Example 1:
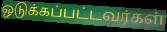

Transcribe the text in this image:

ஒடுக்கப்பட்டவர்கள்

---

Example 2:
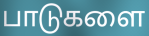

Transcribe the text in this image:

பாடுகளை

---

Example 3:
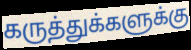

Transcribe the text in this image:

கருத்துக்களுக்கு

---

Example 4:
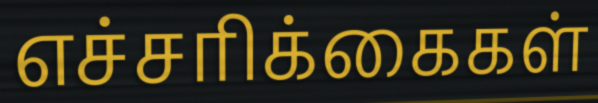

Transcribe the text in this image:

எச்சரிக்கைகள்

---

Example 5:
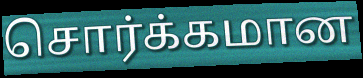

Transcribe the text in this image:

சொர்க்கமான